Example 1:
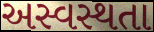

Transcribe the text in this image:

અસ્વસ્થતા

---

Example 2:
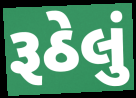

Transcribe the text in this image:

રૂઠેલું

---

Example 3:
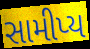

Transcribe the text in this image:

સામીપ્ય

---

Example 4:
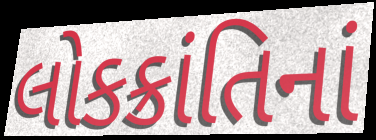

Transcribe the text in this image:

લોકક્રાંતિનાં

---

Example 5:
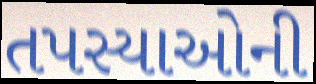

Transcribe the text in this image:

તપસ્યાઓની